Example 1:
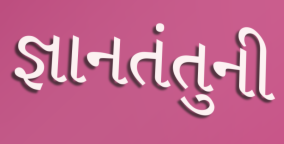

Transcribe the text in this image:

જ્ઞાનતંતુની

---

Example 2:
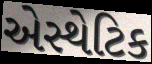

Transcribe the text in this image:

એસ્થેટિક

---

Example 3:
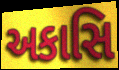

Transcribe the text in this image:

અકાસિ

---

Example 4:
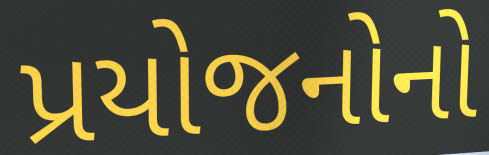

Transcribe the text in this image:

પ્રયોજનોનો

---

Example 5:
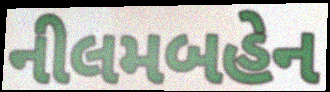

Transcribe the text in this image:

નીલમબહેન